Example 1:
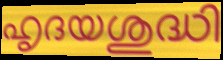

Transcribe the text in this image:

ഹൃദയശുദ്ധി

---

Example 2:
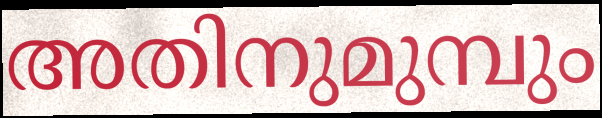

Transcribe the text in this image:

അതിനുമുമ്പും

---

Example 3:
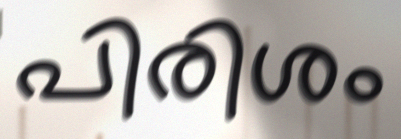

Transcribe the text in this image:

പിരിശം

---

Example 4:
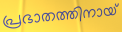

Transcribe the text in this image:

പ്രഭാതത്തിനായ്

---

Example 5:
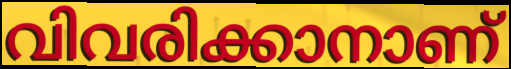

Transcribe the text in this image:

വിവരിക്കാനാണ്